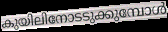
കുയിലിനോടടുക്കുമ്പോൾ